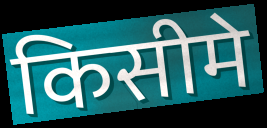
किसीमे